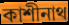
কাশীনাথ